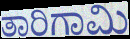
ತಾರಿಗಾಮಿ